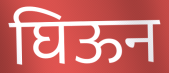
घिऊन